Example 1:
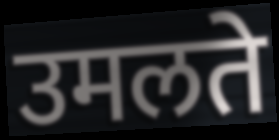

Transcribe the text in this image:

उमलते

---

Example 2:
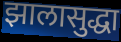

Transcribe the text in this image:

झालासुद्धा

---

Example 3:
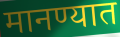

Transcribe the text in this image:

मानण्यात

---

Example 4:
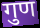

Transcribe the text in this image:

गुण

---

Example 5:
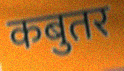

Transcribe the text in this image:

कबुतर